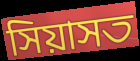
সিয়াসত